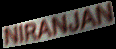
NIRANJAN